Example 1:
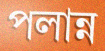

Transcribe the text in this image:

পলান্ন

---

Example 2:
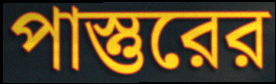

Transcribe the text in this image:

পাস্তুরের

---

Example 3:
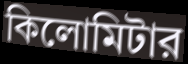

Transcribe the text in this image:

কিলোমিটার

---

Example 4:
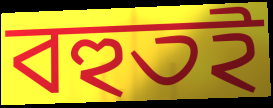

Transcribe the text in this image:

বহুতই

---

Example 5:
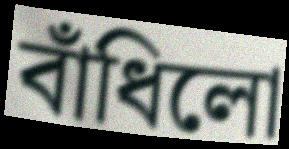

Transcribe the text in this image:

বাঁধিলো